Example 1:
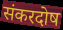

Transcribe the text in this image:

संकरदोष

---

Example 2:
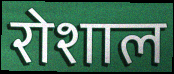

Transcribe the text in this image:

रोशाल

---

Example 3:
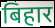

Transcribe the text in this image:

बिहार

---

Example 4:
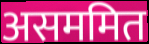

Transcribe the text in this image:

असममित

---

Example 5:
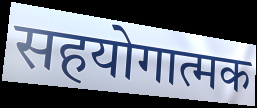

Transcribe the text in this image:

सहयोगात्मक